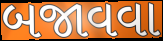
બજાવવા